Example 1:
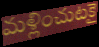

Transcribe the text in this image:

మళ్లించుటకై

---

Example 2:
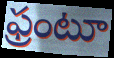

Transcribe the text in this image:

ఫ్రంటూ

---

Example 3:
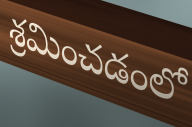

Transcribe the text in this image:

శ్రమించడంలో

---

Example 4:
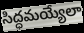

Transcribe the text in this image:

సిద్ధమయ్యేలా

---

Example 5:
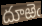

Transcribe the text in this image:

దూఱెఁ